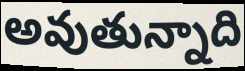
అవుతున్నాది